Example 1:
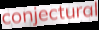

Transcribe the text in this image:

conjectural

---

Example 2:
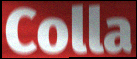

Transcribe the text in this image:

Colla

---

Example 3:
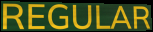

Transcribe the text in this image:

REGULAR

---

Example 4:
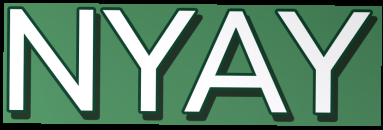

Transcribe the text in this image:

NYAY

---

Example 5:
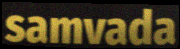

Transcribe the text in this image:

samvada